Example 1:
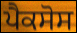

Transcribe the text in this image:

ਪੈਕਸੋਸ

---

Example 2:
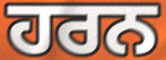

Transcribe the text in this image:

ਹਰਨ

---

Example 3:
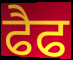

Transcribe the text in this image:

ਫੈਫ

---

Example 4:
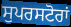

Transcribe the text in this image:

ਸੁਪਰਸਟੋਰਾਂ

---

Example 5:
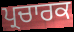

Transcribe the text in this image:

ਪ੍ਰਚਾਰਕ